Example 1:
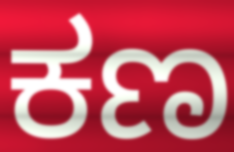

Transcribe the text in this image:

ಕಣ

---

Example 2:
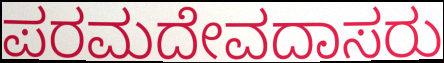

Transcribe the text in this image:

ಪರಮದೇವದಾಸರು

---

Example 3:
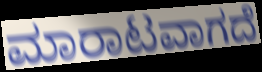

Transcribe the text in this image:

ಮಾರಾಟವಾಗದೆ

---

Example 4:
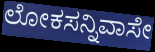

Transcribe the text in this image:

ಲೋಕಸನ್ನಿವಾಸೇ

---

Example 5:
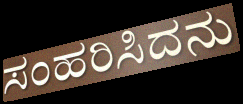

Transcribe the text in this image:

ಸಂಹರಿಸಿದನು